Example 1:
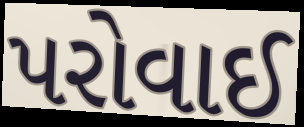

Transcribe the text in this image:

પરોવાઈ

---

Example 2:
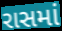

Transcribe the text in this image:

રાસમાં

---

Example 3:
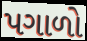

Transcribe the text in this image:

પગાળો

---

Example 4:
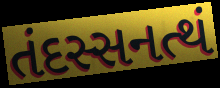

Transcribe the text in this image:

તંદસ્સનત્થં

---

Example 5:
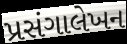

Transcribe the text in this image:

પ્રસંગાલેખન